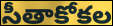
సీతాకోకల